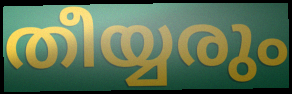
തീയ്യരും